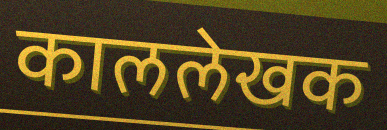
काललेखक